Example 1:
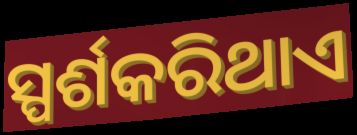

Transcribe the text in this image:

ସ୍ପର୍ଶକରିଥାଏ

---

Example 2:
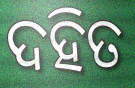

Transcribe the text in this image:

ଦହିତ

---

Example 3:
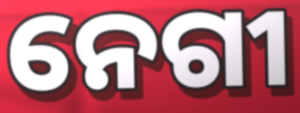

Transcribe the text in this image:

ନେଗୀ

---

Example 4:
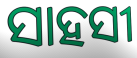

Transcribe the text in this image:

ସାହସୀ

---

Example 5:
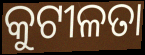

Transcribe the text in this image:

କୁଟୀଳତା